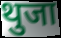
थुजा